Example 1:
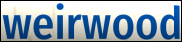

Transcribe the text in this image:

weirwood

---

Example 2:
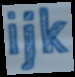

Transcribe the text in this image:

ijk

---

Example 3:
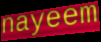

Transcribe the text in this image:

nayeem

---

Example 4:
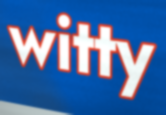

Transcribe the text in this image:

witty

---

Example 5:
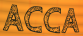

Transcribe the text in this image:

ACCA